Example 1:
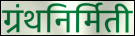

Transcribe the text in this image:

ग्रंथनिर्मिती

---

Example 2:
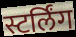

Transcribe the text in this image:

स्टर्लिंग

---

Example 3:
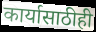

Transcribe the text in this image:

कार्यासाठीही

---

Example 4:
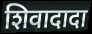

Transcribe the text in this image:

शिवादादा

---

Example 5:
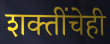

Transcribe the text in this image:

शक्तींचेही